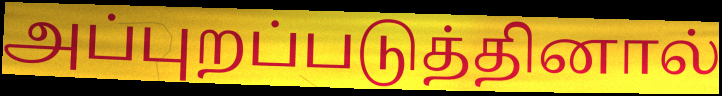
அப்புறப்படுத்தினால்